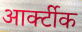
आर्क्टीक